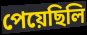
পেয়েছিলি